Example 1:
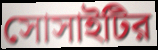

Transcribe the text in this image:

সোসাইটির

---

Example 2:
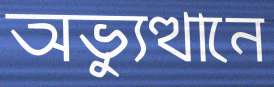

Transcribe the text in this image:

অভ্যুত্থানে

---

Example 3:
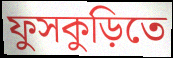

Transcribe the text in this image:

ফুসকুড়িতে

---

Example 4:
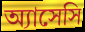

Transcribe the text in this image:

অ্যাসেসি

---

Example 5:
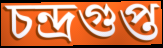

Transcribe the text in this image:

চন্দ্রগুপ্ত